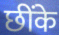
छींके